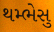
થમ્ભેસુ